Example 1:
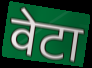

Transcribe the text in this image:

वेटा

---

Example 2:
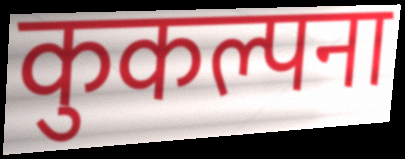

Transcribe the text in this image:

कुकल्पना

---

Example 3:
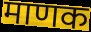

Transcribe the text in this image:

माणक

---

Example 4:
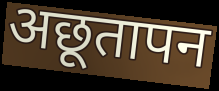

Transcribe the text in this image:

अछूतापन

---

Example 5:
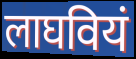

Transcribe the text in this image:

लाघवियं